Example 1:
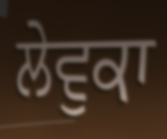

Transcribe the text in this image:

ਲੇਵੁਕਾ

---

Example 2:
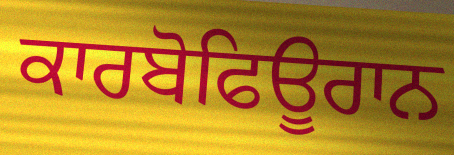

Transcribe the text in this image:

ਕਾਰਬੋਫਿਊਰਾਨ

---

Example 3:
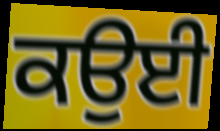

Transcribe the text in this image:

ਕਉਈ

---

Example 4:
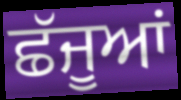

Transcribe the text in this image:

ਛੱਜੂਆਂ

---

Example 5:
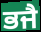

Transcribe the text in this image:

ਭਜੈ